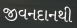
જીવનદાનથી